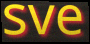
sve